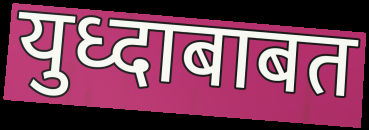
युध्दाबाबत